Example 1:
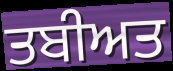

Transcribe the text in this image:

ਤਬੀਅਤ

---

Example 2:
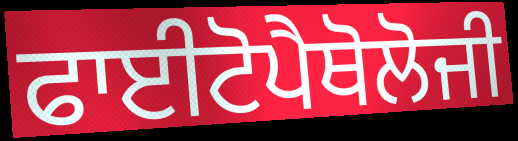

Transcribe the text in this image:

ਫਾਈਟੋਪੈਥੋਲੋਜੀ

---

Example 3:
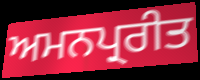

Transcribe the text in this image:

ਅਮਨਪ੍ਰਰੀਤ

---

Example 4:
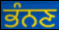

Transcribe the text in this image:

ਭੰਨਣ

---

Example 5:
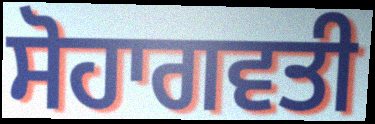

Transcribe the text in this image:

ਸੋਹਾਗਵਤੀ